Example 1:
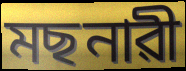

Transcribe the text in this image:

মছনাৱী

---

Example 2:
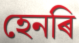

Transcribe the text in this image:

হেনৰি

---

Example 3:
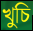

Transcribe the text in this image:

খুচি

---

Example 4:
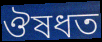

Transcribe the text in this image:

ঔষধত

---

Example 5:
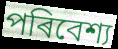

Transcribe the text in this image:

পৰিবেশ্য